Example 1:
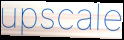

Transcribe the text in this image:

upscale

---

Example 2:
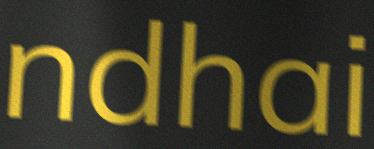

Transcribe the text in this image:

ndhai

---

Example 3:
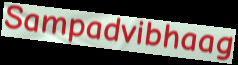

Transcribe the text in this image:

Sampadvibhaag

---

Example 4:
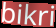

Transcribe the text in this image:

bikri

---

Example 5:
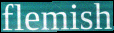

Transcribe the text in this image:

flemish